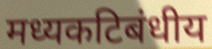
मध्यकटिबंधीय